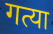
गत्या